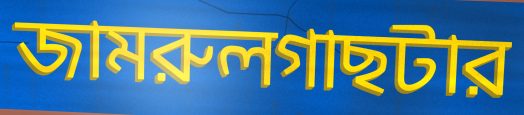
জামরুলগাছটার